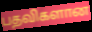
பதவிகளான